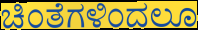
ಚಿಂತೆಗಳಿಂದಲೂ